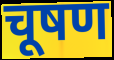
चूषण